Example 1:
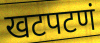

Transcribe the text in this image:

खटपटणं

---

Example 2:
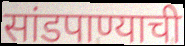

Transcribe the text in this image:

सांडपाण्याची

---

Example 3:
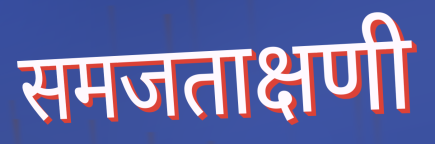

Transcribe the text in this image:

समजताक्षणी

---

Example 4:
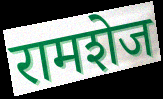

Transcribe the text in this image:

रामशेज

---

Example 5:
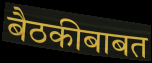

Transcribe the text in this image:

बैठकीबाबत